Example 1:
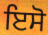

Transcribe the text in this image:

ਇਸੋ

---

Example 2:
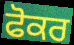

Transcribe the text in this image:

ਫੋਕਰ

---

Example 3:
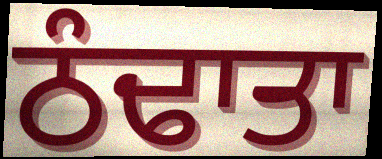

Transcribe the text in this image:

ਠੰਢਾਤਾ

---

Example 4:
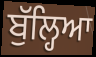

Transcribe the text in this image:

ਬੁੱਲ੍ਹਿਆ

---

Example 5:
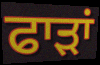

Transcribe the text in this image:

ਫਾੜਾਂ